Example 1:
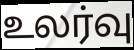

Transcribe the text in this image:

உலர்வு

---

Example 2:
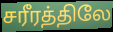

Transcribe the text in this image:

சரீரத்திலே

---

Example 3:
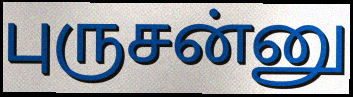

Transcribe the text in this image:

புருசன்னு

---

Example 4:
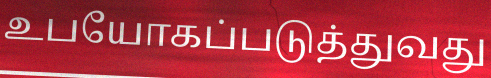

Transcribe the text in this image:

உபயோகப்படுத்துவது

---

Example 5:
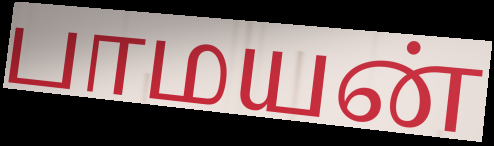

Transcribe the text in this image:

பாமயன்